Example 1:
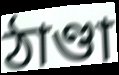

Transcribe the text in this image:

ঠাণ্ডা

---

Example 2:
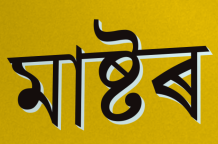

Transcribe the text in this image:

মাষ্টৰ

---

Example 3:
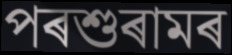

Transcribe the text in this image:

পৰশুৰামৰ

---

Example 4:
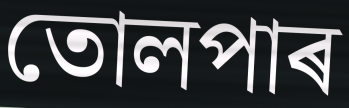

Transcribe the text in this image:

তোলপাৰ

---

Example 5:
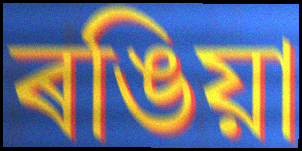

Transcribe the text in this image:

ৰঙিয়া